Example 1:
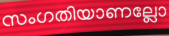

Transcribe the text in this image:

സംഗതിയാണല്ലോ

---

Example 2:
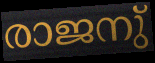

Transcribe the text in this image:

രാജനു്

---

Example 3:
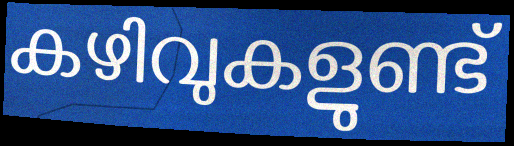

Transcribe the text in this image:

കഴിവുകളുണ്ട്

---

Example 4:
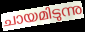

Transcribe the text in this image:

ചായമിടുന്നു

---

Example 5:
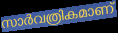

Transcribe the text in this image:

സാർവത്രികമാണ്